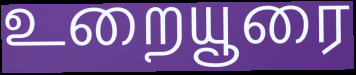
உறையூரை